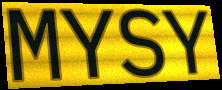
MYSY